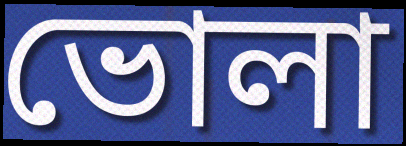
ভোলা